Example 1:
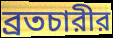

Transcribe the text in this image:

ব্রতচারীর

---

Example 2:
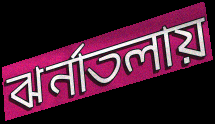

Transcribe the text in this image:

ঝর্নাতলায়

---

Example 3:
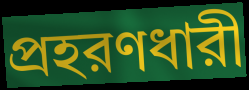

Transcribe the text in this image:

প্রহরণধারী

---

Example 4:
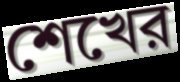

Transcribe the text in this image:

শেখের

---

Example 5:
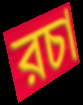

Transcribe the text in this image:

রচা